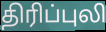
திரிப்புலி